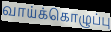
வாய்க்கொழுப்பு